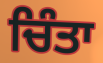
ਚਿੰਤਾ